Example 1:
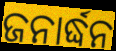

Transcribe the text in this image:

ଜନାର୍ଦ୍ଧନ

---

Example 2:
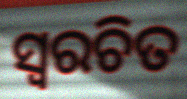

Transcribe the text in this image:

ସ୍ଵରଚିତ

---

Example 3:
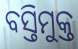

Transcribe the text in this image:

ବସ୍ତିମୁକ୍ତ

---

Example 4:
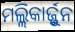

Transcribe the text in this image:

ମଲ୍ଲିକାର୍ଜ୍ଜୁନ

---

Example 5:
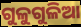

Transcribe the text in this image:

ଗୁଳୁଗୁଳିଆ